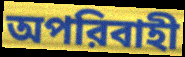
অপরিবাহী